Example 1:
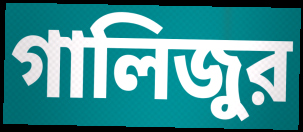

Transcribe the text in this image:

গালিজুর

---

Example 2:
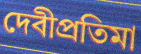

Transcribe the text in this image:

দেবীপ্রতিমা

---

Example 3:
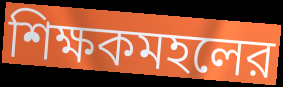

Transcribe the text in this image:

শিক্ষকমহলের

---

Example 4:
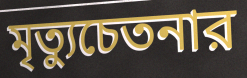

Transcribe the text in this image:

মৃত্যুচেতনার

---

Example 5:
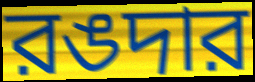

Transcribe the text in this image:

রঙদার